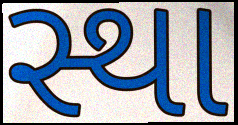
સ્થા